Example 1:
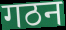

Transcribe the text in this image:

गठन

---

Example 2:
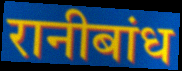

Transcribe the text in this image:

रानीबांध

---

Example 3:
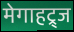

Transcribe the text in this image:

मेगाहट्र्ज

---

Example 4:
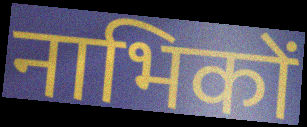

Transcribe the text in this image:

नाभिकों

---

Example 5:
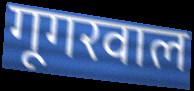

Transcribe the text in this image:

गूगरवाल